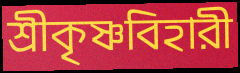
শ্রীকৃষ্ণবিহারী